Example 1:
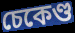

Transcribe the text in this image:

চেকেণ্ড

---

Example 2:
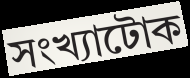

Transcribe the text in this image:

সংখ্যাটোক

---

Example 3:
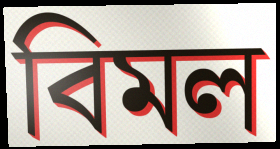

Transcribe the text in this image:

বিমল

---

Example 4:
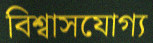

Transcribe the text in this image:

বিশ্বাসযোগ্য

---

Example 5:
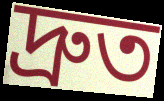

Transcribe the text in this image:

দ্ৰুত